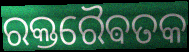
ରକ୍ତରୈଵତକ